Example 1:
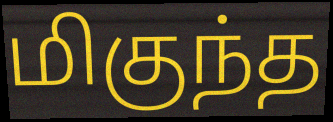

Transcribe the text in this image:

மிகுந்த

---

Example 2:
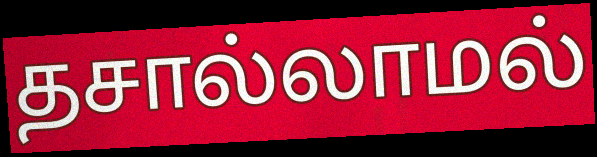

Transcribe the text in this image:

தசால்லாமல்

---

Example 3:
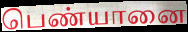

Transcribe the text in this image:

பெண்யானை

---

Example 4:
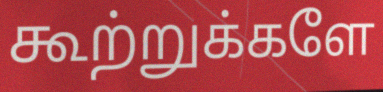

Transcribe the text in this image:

கூற்றுக்களே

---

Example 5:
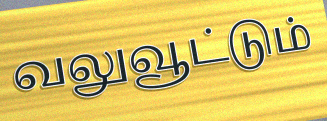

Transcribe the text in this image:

வலுவூட்டும்